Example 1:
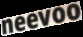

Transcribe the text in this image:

neevoo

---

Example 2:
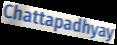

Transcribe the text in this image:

Chattapadhyay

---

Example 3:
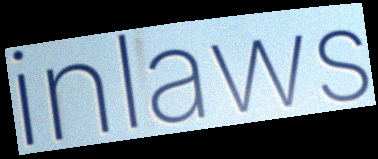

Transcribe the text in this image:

inlaws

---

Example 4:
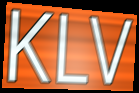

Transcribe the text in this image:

KLV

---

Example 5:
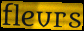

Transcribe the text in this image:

fleurs